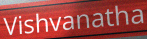
Vishvanatha